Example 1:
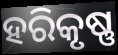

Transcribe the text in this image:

ହରିକୃଷ୍ଣ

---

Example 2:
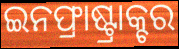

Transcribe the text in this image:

ଇନଫ୍ରାଷ୍ଟ୍ରାକ୍ଚର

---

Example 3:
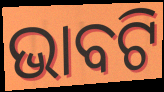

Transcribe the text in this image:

ଭାବଟି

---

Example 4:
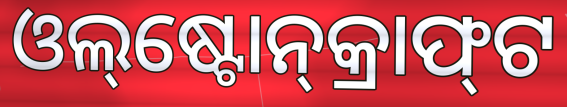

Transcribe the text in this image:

ଓଲ୍‌ଷ୍ଟୋନ୍‌କ୍ରାଫ୍‌ଟ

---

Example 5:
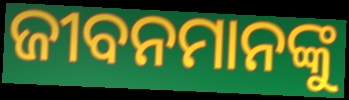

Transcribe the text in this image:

ଜୀବନମାନଙ୍କୁ